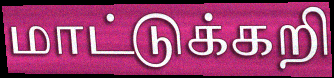
மாட்டுக்கறி